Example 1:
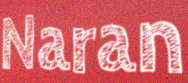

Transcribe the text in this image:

Naran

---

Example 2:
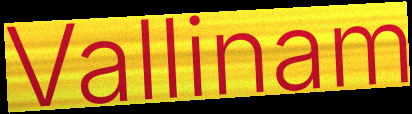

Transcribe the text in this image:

Vallinam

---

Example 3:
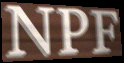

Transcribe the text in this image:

NPF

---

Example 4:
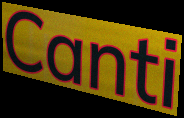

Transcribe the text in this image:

Canti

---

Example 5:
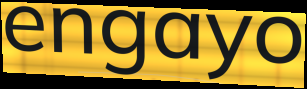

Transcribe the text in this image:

engayo